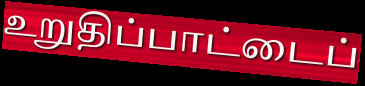
உறுதிப்பாட்டைப்